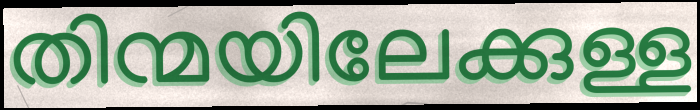
തിന്മയിലേക്കുള്ള